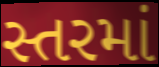
સ્તરમાં